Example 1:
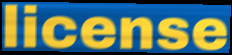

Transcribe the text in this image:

license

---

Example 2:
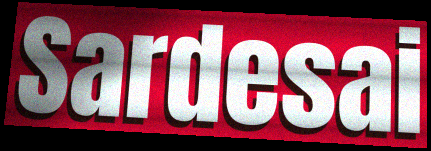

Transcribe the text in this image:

Sardesai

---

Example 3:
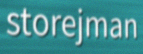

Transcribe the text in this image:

storejman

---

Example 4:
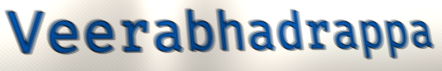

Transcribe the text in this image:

Veerabhadrappa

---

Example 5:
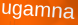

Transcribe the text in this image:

ugamna